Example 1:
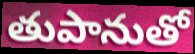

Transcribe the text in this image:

తుపానుతో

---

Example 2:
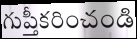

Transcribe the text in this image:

గుప్తీకరించండి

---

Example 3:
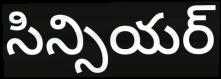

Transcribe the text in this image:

సిన్సియర్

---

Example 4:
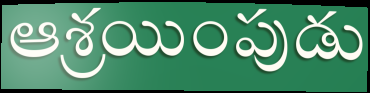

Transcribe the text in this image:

ఆశ్రయింపుడు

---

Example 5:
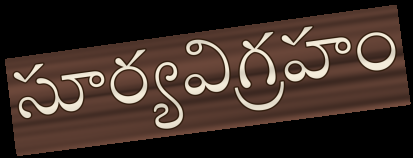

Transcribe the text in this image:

సూర్యవిగ్రహం